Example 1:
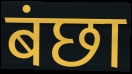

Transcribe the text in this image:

बंछा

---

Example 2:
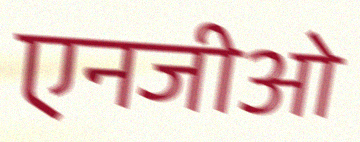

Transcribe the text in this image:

एनजीओ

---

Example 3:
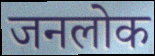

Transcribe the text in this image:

जनलोक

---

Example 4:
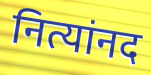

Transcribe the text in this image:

नित्यांनद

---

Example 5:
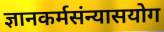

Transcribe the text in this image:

ज्ञानकर्मसंन्यासयोग